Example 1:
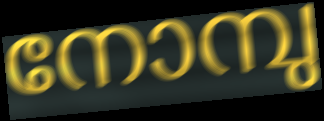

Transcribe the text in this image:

നോമ്പു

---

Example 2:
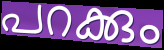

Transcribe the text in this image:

പറക്കും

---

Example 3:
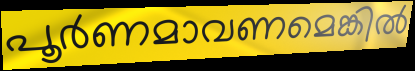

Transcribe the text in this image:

പൂർണമാവണമെങ്കിൽ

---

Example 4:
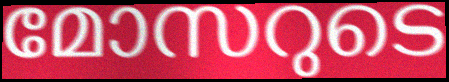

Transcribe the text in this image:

മോസറുടെ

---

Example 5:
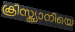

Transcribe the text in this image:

ക്രിസ്ത്യാനിയെ